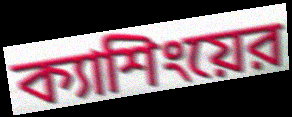
ক্যাশিংয়ের